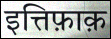
इत्तिफ़ाक़